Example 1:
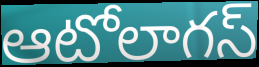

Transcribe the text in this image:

ఆటోలాగస్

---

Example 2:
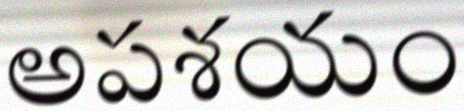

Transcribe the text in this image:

అపశయం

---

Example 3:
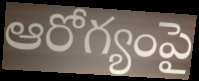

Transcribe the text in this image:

ఆరోగ్యంపై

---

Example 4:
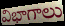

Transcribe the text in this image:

విభాగాలు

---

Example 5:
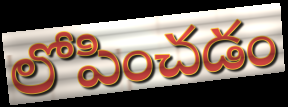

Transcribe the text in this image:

లోపించడం